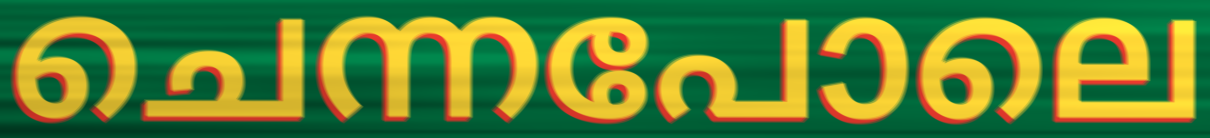
ചെന്നപോലെ